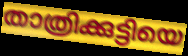
താത്രിക്കുട്ടിയെ